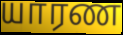
யாரண